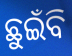
ଛୁଇଁବି